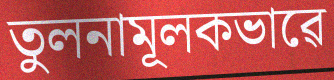
তুলনামূলকভাৱে